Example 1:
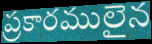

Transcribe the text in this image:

ప్రకారములైన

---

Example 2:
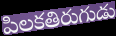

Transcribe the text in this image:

పిలకతిరుగుడు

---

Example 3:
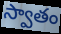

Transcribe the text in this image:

స్వాతం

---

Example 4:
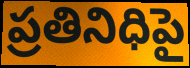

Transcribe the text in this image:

ప్రతినిధిపై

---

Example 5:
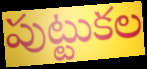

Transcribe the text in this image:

పుట్టుకల